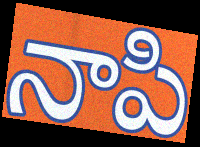
నాపి